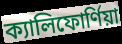
ক্যালিফোর্ণিয়া